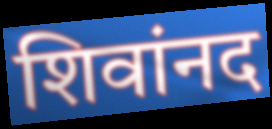
शिवांनद